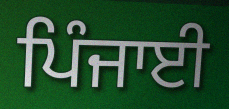
ਪਿੰਜਾਈ